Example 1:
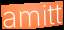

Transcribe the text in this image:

amitt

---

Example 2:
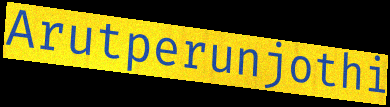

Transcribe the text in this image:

Arutperunjothi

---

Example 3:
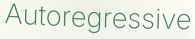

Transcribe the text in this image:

Autoregressive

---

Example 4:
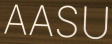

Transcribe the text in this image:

AASU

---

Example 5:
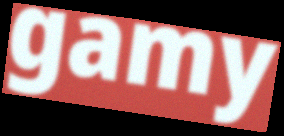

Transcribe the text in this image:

gamy